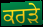
ਕਰੜੇ